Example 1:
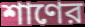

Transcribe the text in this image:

শাণের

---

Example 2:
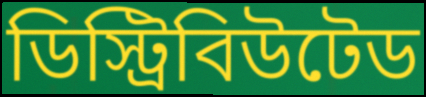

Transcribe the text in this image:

ডিস্ট্রিবিউটেড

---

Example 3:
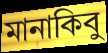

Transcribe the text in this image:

মানাকিবু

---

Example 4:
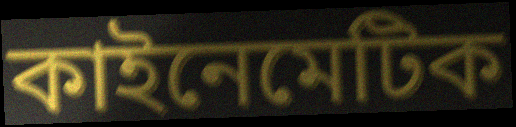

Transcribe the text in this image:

কাইনেমেটিক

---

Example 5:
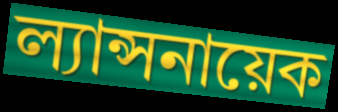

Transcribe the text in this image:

ল্যান্সনায়েক